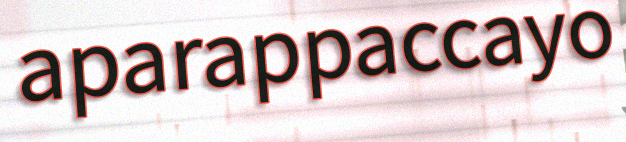
aparappaccayo